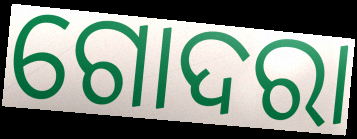
ଗୋଦରା